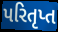
પરિતૃપ્ત